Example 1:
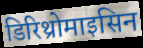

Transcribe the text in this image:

डिरिथ्रोमाइसिन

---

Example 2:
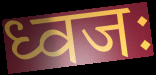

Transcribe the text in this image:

ध्वजः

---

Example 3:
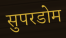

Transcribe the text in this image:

सुपरडोम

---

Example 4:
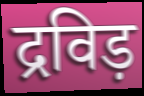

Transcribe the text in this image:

द्रविड़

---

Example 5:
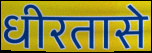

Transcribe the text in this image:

धीरतासे